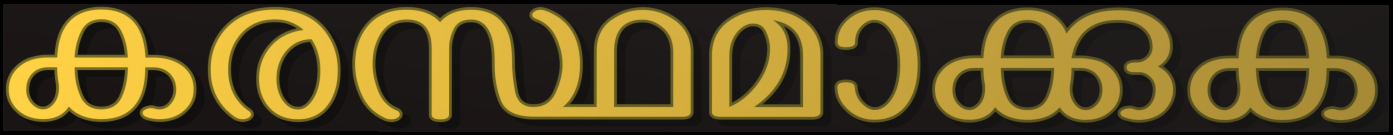
കരസ്ഥമാക്കുക